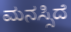
ಮನಸ್ಸಿದೆ